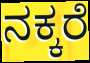
ನಕ್ಕರೆ